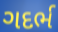
ગદર્ભ